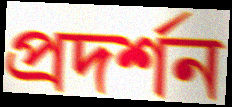
প্ৰদৰ্শন